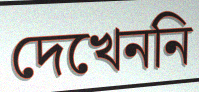
দেখেননি